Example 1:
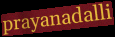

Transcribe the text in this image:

prayanadalli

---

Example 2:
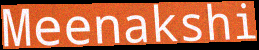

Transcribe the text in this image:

Meenakshi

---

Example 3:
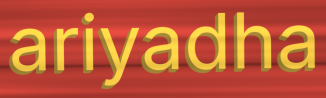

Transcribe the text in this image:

ariyadha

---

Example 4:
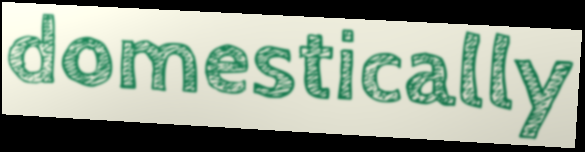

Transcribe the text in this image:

domestically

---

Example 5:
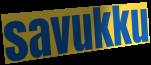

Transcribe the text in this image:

savukku